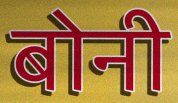
बोनी